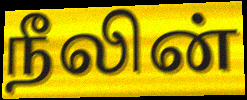
நீலின்